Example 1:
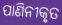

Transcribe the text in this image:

ପାଣିନୀକୃତ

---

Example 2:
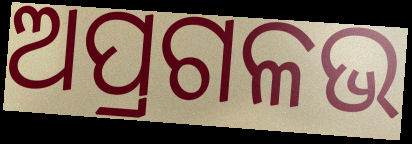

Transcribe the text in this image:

ଅପ୍ରଗଳଭ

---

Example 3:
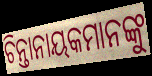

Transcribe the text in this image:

ଚିନ୍ତାନାୟକମାନଙ୍କୁ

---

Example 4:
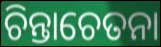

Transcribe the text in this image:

ଚିନ୍ତାଚେତନା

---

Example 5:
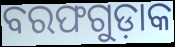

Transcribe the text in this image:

ବରଫଗୁଡ଼ାକ